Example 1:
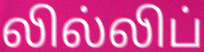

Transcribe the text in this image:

லில்லிப்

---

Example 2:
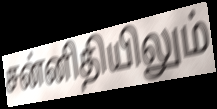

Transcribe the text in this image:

சன்னிதியிலும்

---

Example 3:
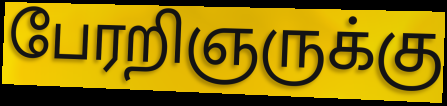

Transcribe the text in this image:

பேரறிஞருக்கு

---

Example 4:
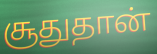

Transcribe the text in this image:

சூதுதான்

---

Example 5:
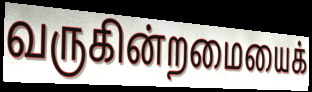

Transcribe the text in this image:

வருகின்றமையைக்